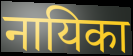
नायिका